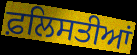
ਫ਼ਲਿਸਤੀਆਂ